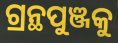
ଗ୍ରନ୍ଥପୁଞ୍ଜକୁ